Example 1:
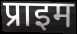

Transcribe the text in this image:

प्राइम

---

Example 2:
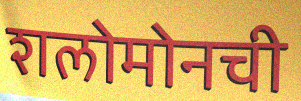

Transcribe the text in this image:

शलोमोनची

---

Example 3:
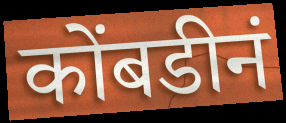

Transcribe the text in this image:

कोंबडीनं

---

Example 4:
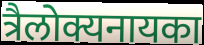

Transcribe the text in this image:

त्रैलोक्यनायका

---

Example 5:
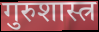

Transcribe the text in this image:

गुरुशास्त्र